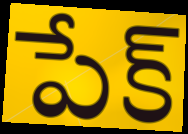
పేక్